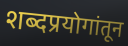
शब्दप्रयोगांतून